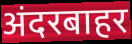
अंदरबाहर